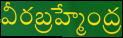
వీరబ్రహ్మేంద్ర